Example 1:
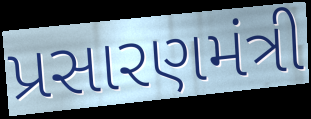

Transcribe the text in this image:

પ્રસારણમંત્રી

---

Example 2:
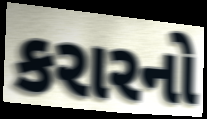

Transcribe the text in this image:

કરારનો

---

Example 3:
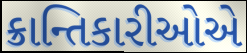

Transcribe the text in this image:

ક્રાન્તિકારીઓએ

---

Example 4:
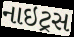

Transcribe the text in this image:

નાઇટ્રસ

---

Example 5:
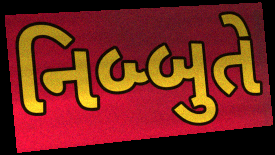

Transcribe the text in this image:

નિબ્બુતે